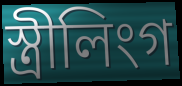
স্ত্ৰীলিংগ